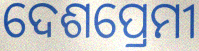
ଦେଶପ୍ରେମୀ